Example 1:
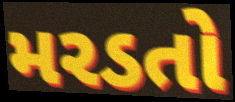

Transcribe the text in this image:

મરડતો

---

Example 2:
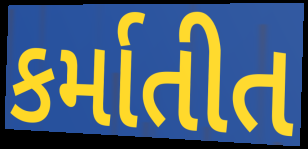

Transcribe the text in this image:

કર્માતીત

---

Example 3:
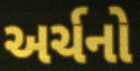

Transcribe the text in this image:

અર્ચનો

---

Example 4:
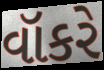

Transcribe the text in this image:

વૉકરે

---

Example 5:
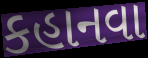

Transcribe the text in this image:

કહાનવા